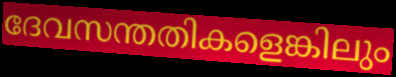
ദേവസന്തതികളെങ്കിലും